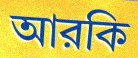
আরকি